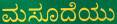
ಮಸೂದೆಯು